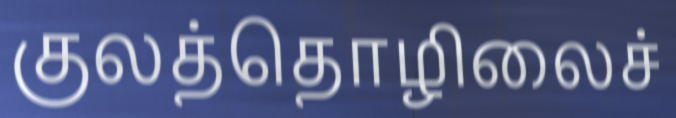
குலத்தொழிலைச்